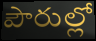
పౌరుల్లో